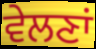
ਵੇਲਣਾਂ